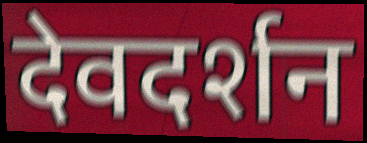
देवदर्शन